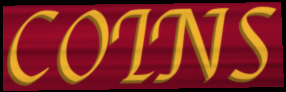
COINS